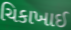
ચિકાખાઈ